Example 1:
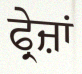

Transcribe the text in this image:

ਫ੍ਰੇਜ਼ਾਂ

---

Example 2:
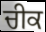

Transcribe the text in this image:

ਚੀਕ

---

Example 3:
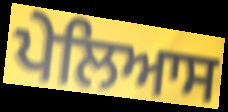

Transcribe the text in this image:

ਪੇਲਿਆਸ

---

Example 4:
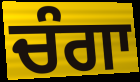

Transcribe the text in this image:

ਚੰਗਾ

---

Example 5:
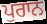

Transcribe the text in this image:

ਪੁਰਾਨ